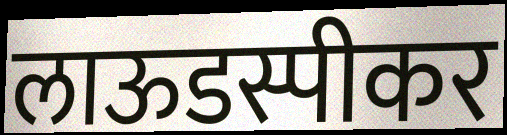
लाऊडस्पीकर